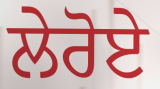
ਲੇਰੋਏ